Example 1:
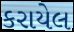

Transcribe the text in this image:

કરાયેલ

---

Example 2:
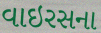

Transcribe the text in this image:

વાઇરસના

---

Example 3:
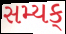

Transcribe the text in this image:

સમ્યક્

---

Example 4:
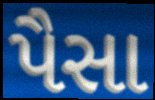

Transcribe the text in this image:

પૈસા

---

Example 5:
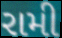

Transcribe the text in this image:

રામી